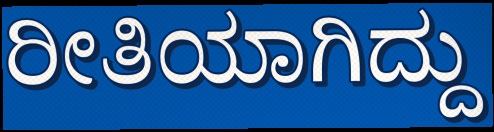
ರೀತಿಯಾಗಿದ್ದು